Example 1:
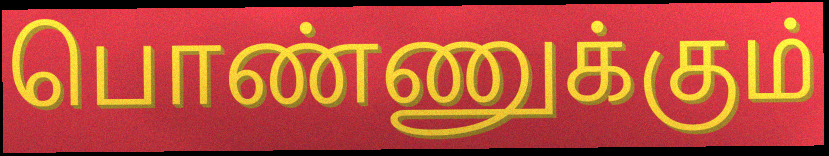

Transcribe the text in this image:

பொண்ணுக்கும்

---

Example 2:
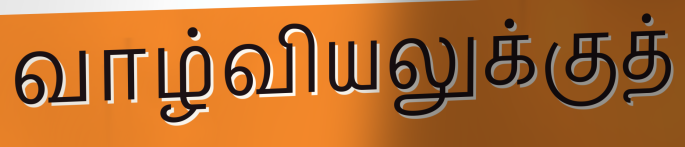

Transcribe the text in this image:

வாழ்வியலுக்குத்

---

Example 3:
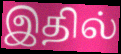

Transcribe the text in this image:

இதில்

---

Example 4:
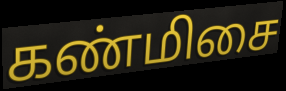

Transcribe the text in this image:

கண்மிசை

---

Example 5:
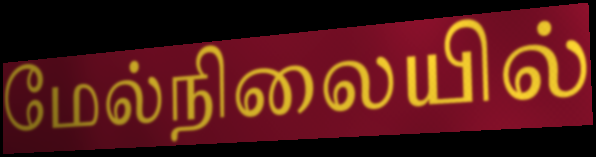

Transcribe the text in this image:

மேல்நிலையில்